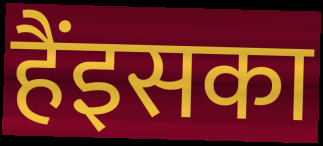
हैंइसका